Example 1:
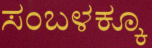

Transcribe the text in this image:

ಸಂಬಳಕ್ಕೂ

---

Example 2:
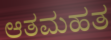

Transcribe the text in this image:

ಆತಮಹತ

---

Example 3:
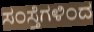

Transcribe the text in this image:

ಸಂಸ್ತೆಗಳಿಂದ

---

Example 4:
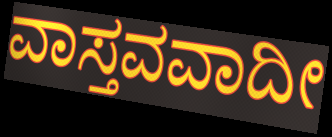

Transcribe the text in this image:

ವಾಸ್ತವವಾದೀ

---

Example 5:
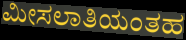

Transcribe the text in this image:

ಮೀಸಲಾತಿಯಂತಹ